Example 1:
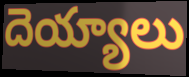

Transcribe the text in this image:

దెయ్యాలు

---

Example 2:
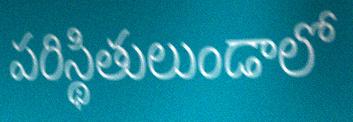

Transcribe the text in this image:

పరిస్థితులుండాలో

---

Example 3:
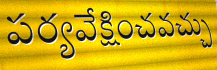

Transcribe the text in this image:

పర్యవేక్షించవచ్చు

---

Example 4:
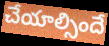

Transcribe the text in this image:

చేయాల్సిందే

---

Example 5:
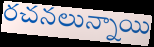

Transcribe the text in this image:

రచనలున్నాయి